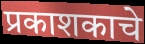
प्रकाशकाचे